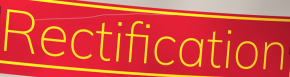
Rectification